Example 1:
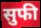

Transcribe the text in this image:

सुफी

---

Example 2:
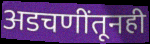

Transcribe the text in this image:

अडचणींतूनही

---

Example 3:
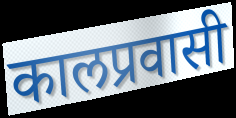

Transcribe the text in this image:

कालप्रवासी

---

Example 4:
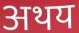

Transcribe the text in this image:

अथय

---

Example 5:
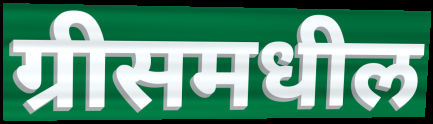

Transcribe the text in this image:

ग्रीसमधील